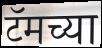
टॅमच्या